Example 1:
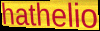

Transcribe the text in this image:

hathelio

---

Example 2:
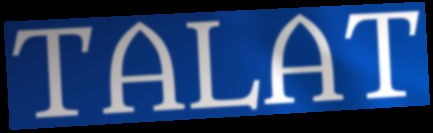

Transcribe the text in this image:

TALAT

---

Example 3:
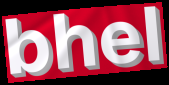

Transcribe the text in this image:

bhel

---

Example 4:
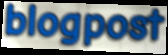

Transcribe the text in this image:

blogpost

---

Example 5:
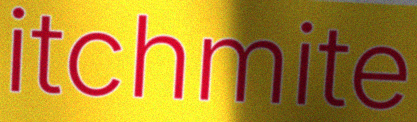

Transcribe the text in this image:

itchmite